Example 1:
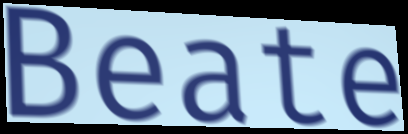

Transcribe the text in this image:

Beate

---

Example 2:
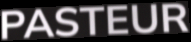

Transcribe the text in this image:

PASTEUR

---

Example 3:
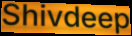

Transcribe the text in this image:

Shivdeep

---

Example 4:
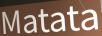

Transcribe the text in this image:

Matata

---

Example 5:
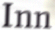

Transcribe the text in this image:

Inn